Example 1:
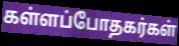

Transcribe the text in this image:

கள்ளப்போதகர்கள்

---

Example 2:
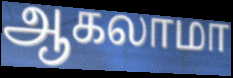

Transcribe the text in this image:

ஆகலாமா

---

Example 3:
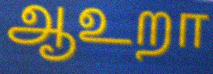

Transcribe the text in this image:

ஆஉறா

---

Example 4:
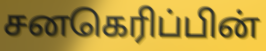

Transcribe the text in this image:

சனகெரிப்பின்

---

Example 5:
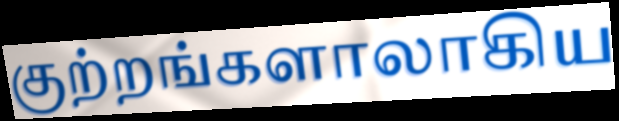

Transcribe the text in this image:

குற்றங்களாலாகிய